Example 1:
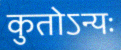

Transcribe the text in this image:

कुतोऽन्यः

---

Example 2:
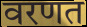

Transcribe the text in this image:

वरणत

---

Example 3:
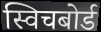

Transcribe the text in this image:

स्विचबोर्ड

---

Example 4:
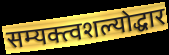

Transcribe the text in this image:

सम्यक्त्वशल्योद्धार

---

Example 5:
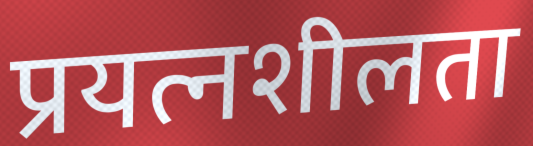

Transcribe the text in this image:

प्रयत्नशीलता